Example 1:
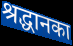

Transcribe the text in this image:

श्रद्धानका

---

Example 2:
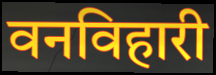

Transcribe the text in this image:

वनविहारी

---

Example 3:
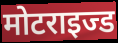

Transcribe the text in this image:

मोटराइज्ड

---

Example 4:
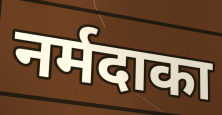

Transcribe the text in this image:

नर्मदाका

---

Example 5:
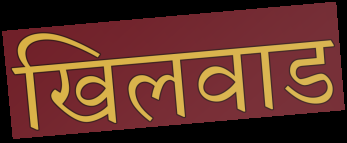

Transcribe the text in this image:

खिलवाड